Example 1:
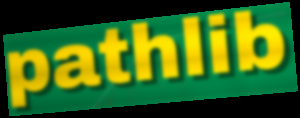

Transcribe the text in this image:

pathlib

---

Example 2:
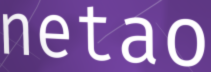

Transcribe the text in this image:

netao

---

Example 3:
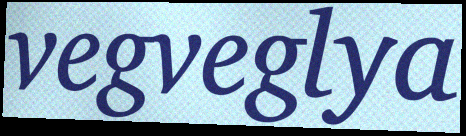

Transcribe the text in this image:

vegveglya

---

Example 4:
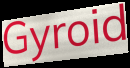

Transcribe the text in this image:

Gyroid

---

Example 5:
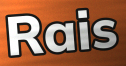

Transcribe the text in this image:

Rais